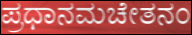
ಪ್ರಧಾನಮಚೇತನಂ